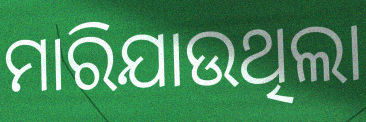
ମାରିଯାଉଥିଲା